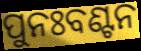
ପୁନଃବଣ୍ଟନ